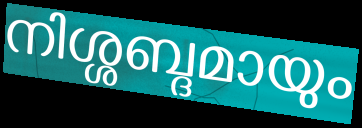
നിശ്ശബ്ദമായും